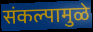
संकल्पामुळे